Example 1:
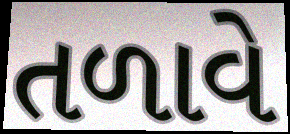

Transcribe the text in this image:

તળાવે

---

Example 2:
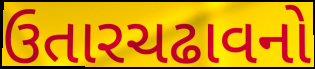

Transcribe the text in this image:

ઉતારચઢાવનો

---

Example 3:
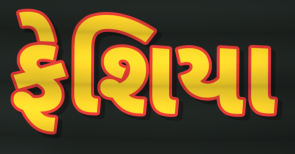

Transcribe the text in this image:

ફેશિયા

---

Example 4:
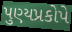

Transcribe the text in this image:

પુણ્યપ્રકોપે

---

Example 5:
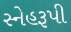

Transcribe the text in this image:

સ્નેહરૂપી